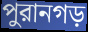
পুরানগড়